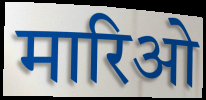
मारिओ